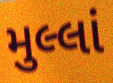
મુલ્લાં